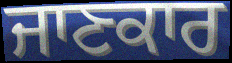
ਜਾਣਕਾਰ